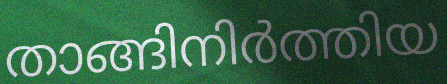
താങ്ങിനിർത്തിയ